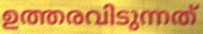
ഉത്തരവിടുന്നത്